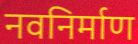
नवनिर्माण